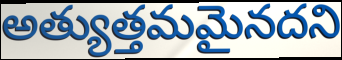
అత్యుత్తమమైనదని